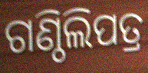
ଗଣ୍ଠିଲିପତ୍ର